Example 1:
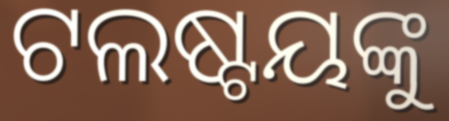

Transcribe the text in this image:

ଟଲଷ୍ଟୟଙ୍କୁ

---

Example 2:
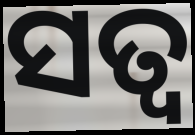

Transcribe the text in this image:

ସତ୍ୱ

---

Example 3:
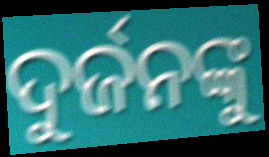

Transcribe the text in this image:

ଦୁର୍ଜନଙ୍କୁ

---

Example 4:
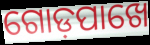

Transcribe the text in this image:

ଗୋଡ଼ପାଖେ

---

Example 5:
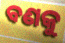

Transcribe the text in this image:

ବଣକୁ